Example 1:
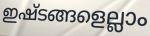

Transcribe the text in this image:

ഇഷ്ടങ്ങളെല്ലാം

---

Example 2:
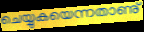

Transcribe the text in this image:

ചെയ്യുകയെന്നതാണു്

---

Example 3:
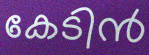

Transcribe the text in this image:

കേടിൻ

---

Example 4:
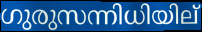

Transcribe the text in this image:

ഗുരുസന്നിധിയില്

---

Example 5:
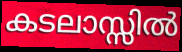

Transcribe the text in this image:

കടലാസ്സിൽ